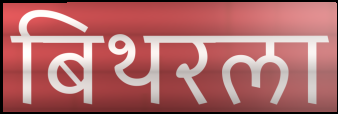
बिथरला